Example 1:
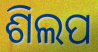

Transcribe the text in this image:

ଶିଲପ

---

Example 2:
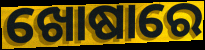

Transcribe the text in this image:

ଖୋଷାରେ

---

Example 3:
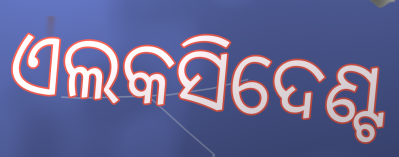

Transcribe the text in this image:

ଏଲକସିଦେଣ୍ଟ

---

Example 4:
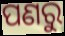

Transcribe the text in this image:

ପଣରୁ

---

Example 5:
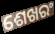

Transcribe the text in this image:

ଶେଖରଂ